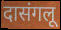
दासंगलू